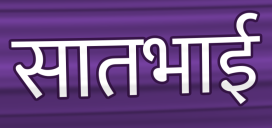
सातभाई